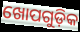
ଖୋପଗୁଡ଼ିକ